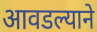
आवडल्याने